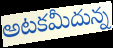
అటకమీదున్న